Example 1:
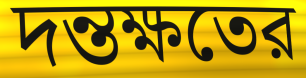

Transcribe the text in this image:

দন্তক্ষতের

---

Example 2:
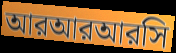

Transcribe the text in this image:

আরআরআরসি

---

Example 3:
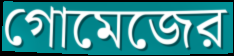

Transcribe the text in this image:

গোমেজের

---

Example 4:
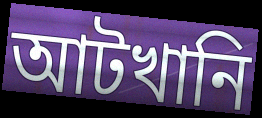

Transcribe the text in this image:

আটখানি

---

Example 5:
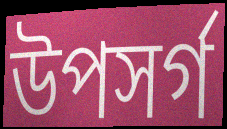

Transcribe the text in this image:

উপসর্গ